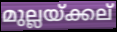
മുല്ലയ്ക്കല്